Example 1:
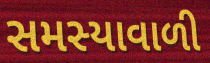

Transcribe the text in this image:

સમસ્યાવાળી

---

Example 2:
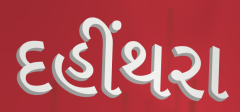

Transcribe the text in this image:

દહીંથરા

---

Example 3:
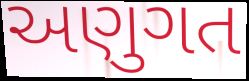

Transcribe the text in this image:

અણુગત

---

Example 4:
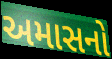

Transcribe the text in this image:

અમાસનો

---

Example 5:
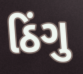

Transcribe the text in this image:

ઠિંગુ